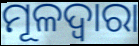
ମୂଳଦ୍ଵାରା